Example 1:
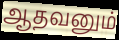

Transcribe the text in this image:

ஆதவனும்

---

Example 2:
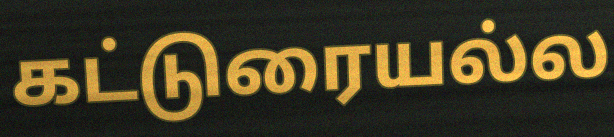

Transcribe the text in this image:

கட்டுரையல்ல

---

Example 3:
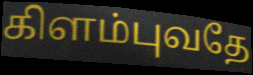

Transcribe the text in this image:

கிளம்புவதே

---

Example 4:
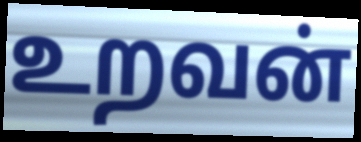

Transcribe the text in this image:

உறவன்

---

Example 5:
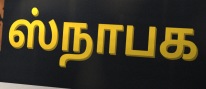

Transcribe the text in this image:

ஸ்நாபக